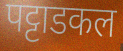
पट्टाडकल